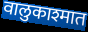
वालुकाश्मात